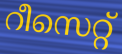
റീസെറ്റ്